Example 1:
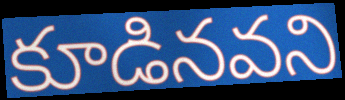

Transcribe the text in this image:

కూడినవని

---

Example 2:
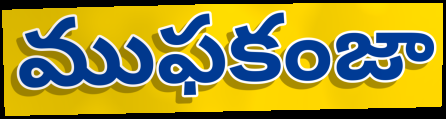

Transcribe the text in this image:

ముఫకంజా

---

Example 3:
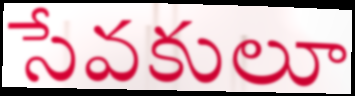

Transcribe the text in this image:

సేవకులూ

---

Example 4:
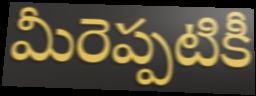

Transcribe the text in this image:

మీరెప్పటికీ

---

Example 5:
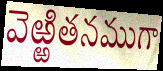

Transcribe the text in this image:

వెఱ్ఱితనముగా